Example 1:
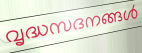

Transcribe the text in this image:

വൃദ്ധസദനങ്ങൾ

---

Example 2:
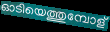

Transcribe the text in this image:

ഓടിയെത്തുമ്പോള്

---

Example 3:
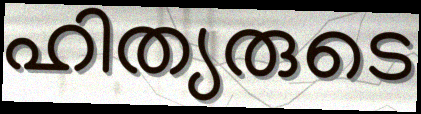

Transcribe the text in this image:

ഹിത്യരുടെ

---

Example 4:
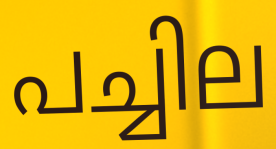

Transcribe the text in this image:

പച്ചില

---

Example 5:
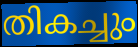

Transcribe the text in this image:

തികച്ചും